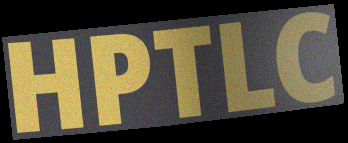
HPTLC